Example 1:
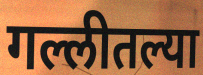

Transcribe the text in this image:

गल्लीतल्या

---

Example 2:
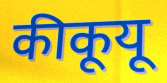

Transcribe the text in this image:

कीकूयू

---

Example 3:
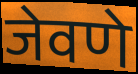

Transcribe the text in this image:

जेवणे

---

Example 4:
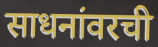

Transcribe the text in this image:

साधनांवरची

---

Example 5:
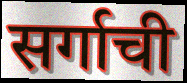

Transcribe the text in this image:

सर्गाची